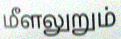
மீளலுறும்